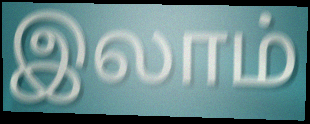
இலாம்